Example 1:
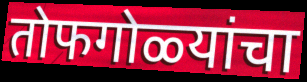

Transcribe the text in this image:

तोफगोळ्यांचा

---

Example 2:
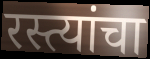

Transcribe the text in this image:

रस्त्यांचा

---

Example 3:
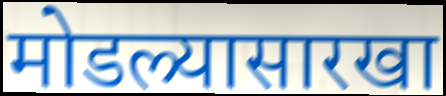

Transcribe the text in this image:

मोडल्यासारखा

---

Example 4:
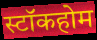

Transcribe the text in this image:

स्टॉकहोम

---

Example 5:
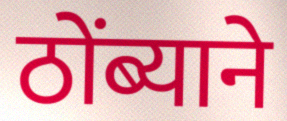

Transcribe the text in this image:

ठोंब्याने